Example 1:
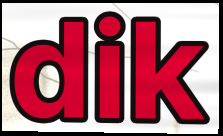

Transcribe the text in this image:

dik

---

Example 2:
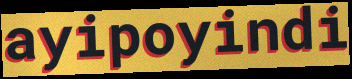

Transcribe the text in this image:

ayipoyindi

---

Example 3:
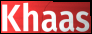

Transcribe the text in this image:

Khaas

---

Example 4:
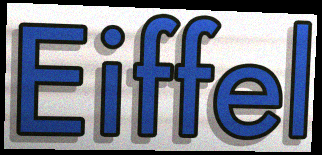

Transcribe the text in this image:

Eiffel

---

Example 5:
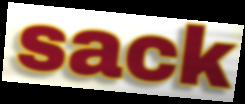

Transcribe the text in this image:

sack